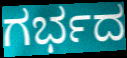
ಗರ್ಭದ